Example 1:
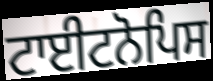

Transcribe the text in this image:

ਟਾਈਟਨੋਪਿਸ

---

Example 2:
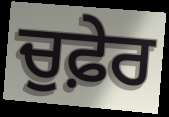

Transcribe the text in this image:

ਚੁਫ਼ੇਰ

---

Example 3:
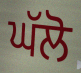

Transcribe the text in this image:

ਘੱਲੋ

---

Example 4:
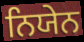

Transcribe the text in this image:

ਨਿਯੇਨ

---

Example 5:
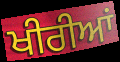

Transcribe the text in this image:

ਖੀਰੀਆਂ